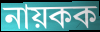
নায়কক